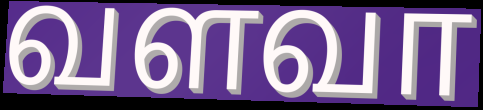
வளவா